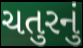
ચતુરનું